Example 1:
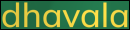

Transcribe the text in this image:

dhavala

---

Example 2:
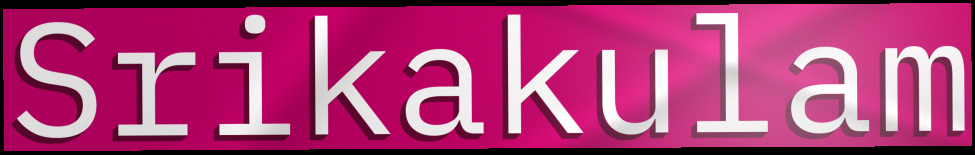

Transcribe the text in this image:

Srikakulam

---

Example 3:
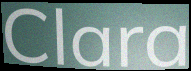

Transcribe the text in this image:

Clara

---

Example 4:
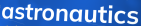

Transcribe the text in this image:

astronautics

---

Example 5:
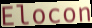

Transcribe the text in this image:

Elocon